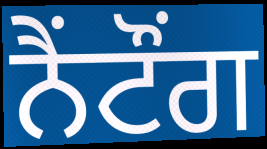
ਨੈਂਟੌਂਗ